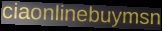
ciaonlinebuymsn